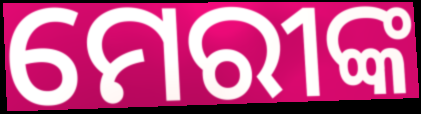
ମେରୀଙ୍କ